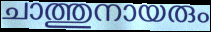
ചാത്തുനായരും